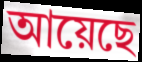
আয়েছে